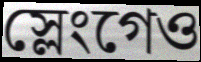
স্লেংগেও